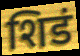
शिडं